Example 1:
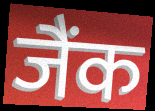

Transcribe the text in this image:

जैंक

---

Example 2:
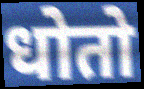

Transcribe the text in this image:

धोतो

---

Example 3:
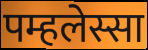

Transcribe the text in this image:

पम्हलेस्सा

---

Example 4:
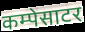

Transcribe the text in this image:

कम्पेसाटर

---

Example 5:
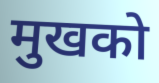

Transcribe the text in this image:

मुखको